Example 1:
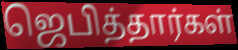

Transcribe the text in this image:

ஜெபித்தார்கள்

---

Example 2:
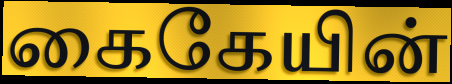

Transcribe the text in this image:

கைகேயின்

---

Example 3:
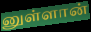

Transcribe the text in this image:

னுள்ளான்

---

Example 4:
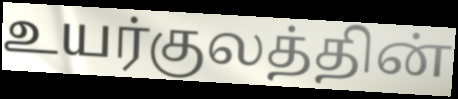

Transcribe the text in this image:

உயர்குலத்தின்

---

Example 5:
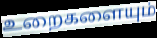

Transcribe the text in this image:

உறைகளையும்